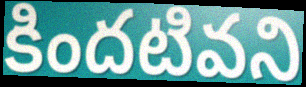
కిందటివని